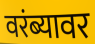
वरंब्यावर